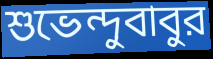
শুভেন্দুবাবুর